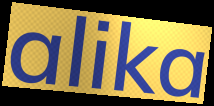
alika